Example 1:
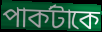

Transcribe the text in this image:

পার্কটাকে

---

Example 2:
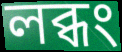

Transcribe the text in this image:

লব্ধং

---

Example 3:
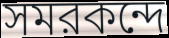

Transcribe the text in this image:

সমরকন্দে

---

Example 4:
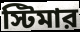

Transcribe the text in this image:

স্টিমার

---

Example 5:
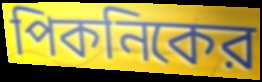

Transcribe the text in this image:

পিকনিকের